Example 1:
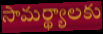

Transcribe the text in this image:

సామర్థ్యాలకు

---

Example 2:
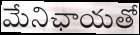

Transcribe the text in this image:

మేనిఛాయతో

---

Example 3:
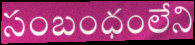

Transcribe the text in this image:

సంబంధంలేని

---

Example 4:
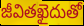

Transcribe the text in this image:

జీవితఖైదుతో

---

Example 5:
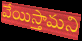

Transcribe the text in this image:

వేయిస్తామని